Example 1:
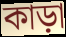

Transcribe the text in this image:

কাড়া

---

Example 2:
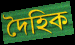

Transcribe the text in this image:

দৈহিক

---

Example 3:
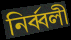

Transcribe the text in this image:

নিৰ্ব্বলী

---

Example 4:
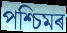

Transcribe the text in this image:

পশ্চিমৰ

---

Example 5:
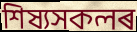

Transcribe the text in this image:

শিষ্যসকলৰ